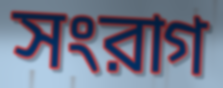
সংরাগ